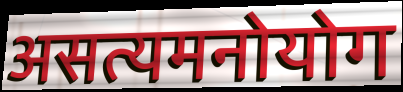
असत्यमनोयोग